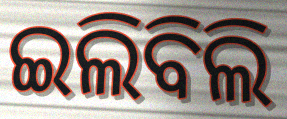
ଇଲିବିଲି